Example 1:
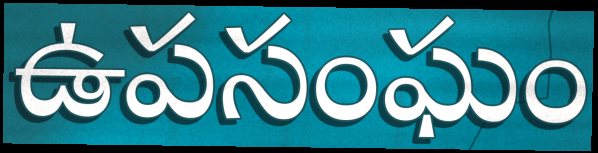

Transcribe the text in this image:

ఉపసంఘం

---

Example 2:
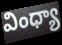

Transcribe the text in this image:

వింధ్యా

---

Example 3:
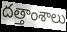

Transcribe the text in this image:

దత్తాంశాలు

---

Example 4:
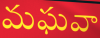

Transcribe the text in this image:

మఘవా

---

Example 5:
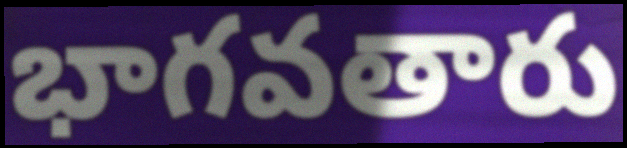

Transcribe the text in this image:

భాగవతారు